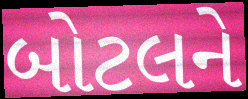
બોટલને